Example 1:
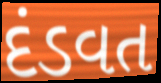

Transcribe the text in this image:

દંડવત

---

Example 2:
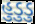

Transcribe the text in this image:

હુડુડુ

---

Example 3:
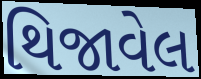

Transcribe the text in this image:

થિજાવેલ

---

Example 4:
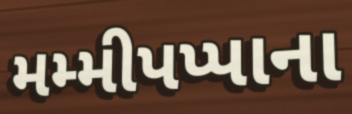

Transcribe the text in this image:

મમ્મીપપ્પાના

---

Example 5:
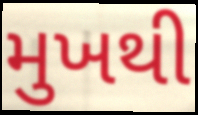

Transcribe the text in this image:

મુખથી